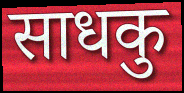
साधकु